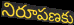
నిరూపణకు